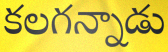
కలగన్నాడు